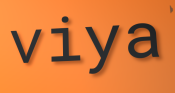
viya